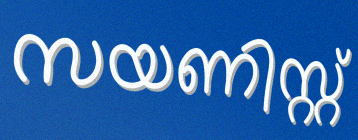
സയണിസ്റ്റ്